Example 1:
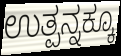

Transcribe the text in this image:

ಉತ್ಪನ್ನಕ್ಕೂ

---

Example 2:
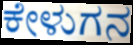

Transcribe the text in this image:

ಕೇಳುಗನ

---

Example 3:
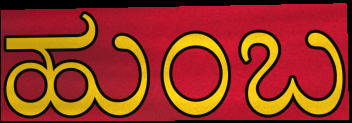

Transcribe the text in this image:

ಹುಂಬ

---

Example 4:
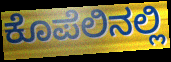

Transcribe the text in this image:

ಕೊಪೆಲಿನಲ್ಲಿ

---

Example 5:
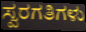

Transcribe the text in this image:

ಸ್ವರಗತಿಗಳು